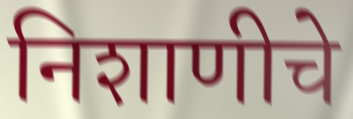
निशाणीचे